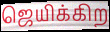
ஜெயிக்கிற